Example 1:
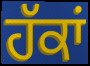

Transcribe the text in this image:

ਹੱਕਾਂ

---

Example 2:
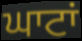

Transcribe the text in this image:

ਘਾਟਾਂ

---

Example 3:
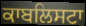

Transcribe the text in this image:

ਕਾਬਲਿਸਟਾ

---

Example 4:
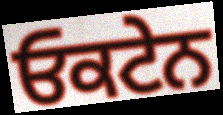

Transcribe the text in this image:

ਓਕਟੇਨ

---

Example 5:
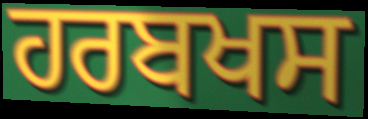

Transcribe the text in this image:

ਹਰਬਖਸ